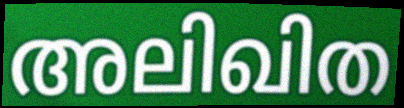
അലിഖിത